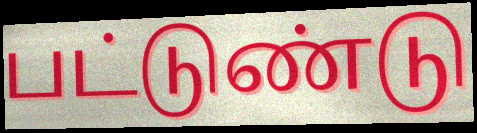
பட்டுண்டு